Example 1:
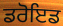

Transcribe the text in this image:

ਡਰੋਇਡ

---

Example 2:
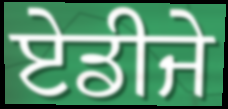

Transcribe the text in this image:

ਏਡੀਜੇ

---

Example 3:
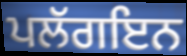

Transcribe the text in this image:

ਪਲੱਗਇਨ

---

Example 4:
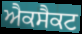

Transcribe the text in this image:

ਐਕਸੈਕਟ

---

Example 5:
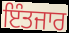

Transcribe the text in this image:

ਇੰਤਜਾਰ